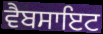
ਵੈਬਸਾਇਟ